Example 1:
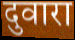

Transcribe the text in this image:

दुवारा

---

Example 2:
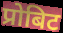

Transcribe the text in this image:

प्रोबिट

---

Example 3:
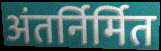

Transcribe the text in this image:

अंतर्निर्मित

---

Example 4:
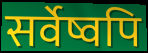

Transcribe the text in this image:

सर्वेष्वपि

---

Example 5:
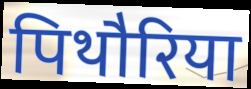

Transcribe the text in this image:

पिथौरिया